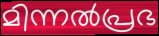
മിന്നൽപ്രഭ